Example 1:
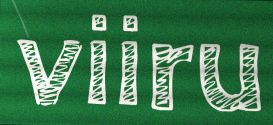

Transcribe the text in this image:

viiru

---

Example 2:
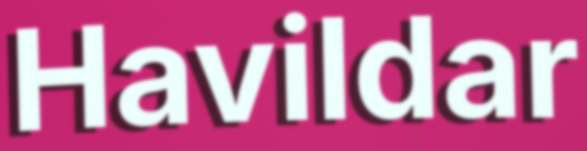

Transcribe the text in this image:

Havildar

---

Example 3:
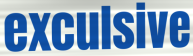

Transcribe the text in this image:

exculsive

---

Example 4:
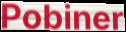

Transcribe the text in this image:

Pobiner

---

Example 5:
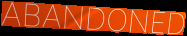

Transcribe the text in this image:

ABANDONED